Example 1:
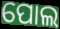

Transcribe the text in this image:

ପୋଲ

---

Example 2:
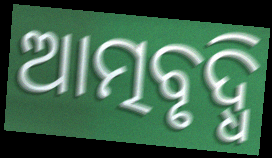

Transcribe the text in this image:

ଆତ୍ମବୃଦ୍ଧି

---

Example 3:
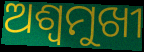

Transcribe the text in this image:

ଅଶ୍ୱମୁଖୀ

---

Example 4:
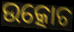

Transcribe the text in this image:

ଉତ୍କୋଚ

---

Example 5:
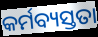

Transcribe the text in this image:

କର୍ମବ୍ୟସ୍ତତା